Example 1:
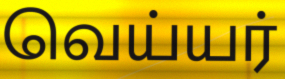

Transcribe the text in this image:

வெய்யர்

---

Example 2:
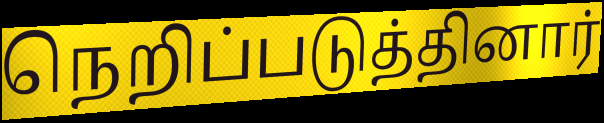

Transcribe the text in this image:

நெறிப்படுத்தினார்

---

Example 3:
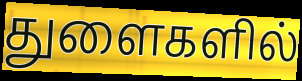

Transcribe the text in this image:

துளைகளில்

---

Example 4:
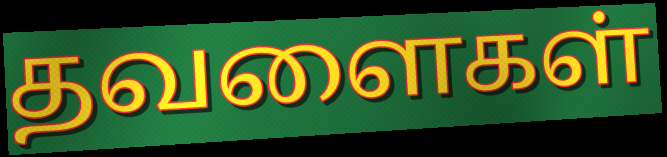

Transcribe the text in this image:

தவளைகள்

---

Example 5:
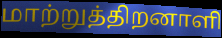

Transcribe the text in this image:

மாற்றுத்திறனாளி